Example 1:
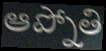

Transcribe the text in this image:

ఆప్నోతి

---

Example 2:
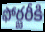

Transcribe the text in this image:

ఫోర్జరీకి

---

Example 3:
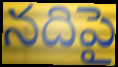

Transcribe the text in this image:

నదిపై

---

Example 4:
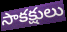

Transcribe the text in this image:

సాకక్షులు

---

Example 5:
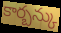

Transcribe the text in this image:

కార్బన్కు